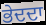
ਭੇਦਦਾ